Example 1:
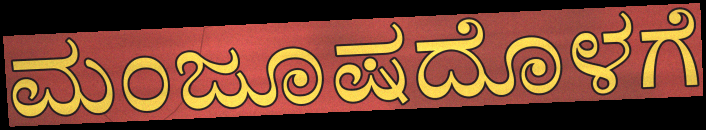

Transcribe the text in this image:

ಮಂಜೂಷದೊಳಗೆ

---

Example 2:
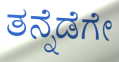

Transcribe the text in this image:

ತನ್ನೆಡೆಗೇ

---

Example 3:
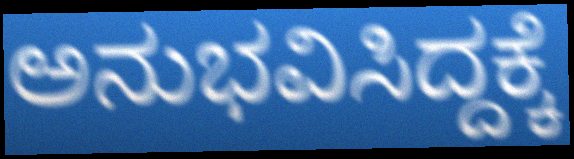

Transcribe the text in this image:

ಅನುಭವಿಸಿದ್ದಕ್ಕೆ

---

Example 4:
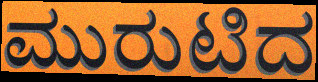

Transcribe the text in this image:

ಮುರುಟಿದ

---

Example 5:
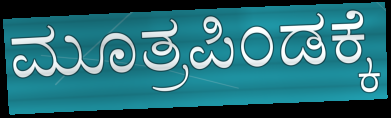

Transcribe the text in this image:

ಮೂತ್ರಪಿಂಡಕ್ಕೆ